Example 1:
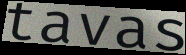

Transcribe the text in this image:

tavas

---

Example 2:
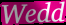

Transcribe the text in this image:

Wedd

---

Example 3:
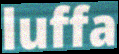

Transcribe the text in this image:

luffa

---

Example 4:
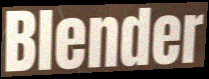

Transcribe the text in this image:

Blender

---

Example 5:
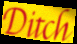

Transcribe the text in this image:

Ditch